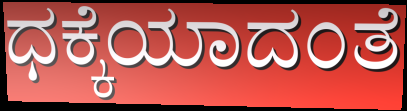
ಧಕ್ಕೆಯಾದಂತೆ